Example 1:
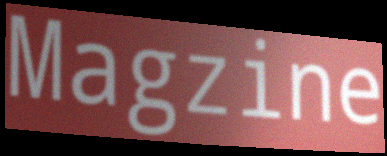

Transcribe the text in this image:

Magzine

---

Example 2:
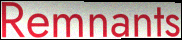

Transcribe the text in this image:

Remnants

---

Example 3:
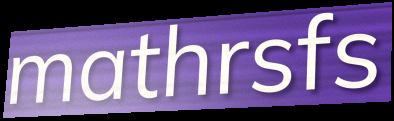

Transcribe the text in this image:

mathrsfs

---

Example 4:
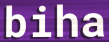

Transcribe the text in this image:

biha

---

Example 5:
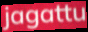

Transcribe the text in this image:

jagattu